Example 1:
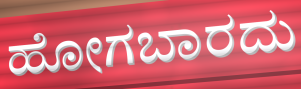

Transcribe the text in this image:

ಹೋಗಬಾರದು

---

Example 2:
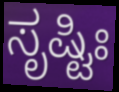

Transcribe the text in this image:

ಸೃಷ್ಟಿಃ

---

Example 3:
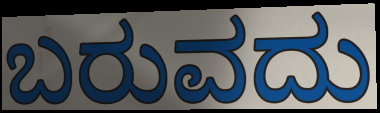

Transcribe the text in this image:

ಬರುವದು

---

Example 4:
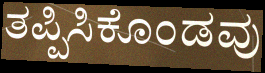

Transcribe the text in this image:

ತಪ್ಪಿಸಿಕೊಂಡವು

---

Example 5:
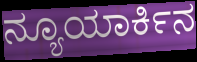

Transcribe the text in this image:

ನ್ಯೂಯಾರ್ಕಿನ